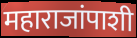
महाराजांपाशी